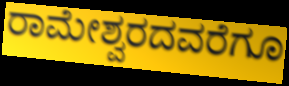
ರಾಮೇಶ್ವರದವರೆಗೂ